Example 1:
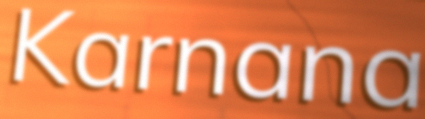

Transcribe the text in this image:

Karnana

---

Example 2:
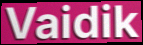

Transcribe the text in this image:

Vaidik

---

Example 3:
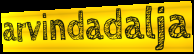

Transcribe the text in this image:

arvindadalja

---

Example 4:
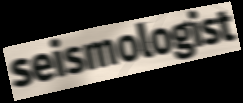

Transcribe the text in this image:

seismologist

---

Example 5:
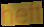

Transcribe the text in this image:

heft